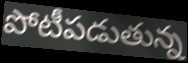
పోటీపడుతున్న